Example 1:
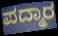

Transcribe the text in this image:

ಪದ್ಮಾರ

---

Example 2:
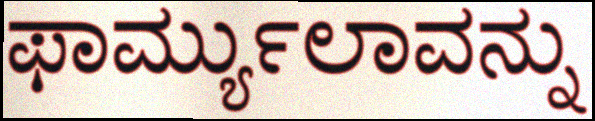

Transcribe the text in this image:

ಫಾರ್ಮ್ಯುಲಾವನ್ನು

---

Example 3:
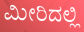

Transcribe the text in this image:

ಮೀರಿದಲ್ಲಿ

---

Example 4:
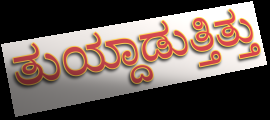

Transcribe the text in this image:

ತುಯ್ದಾಡುತ್ತಿತ್ತು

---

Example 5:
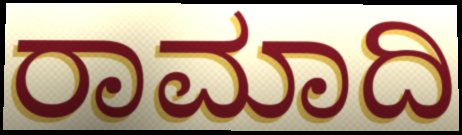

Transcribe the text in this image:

ರಾಮಾದಿ